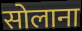
सोलाना